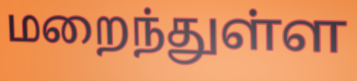
மறைந்துள்ள